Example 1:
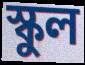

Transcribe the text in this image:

স্কুল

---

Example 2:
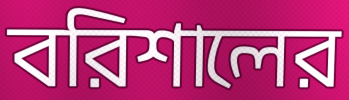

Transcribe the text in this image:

বরিশালের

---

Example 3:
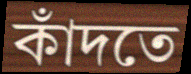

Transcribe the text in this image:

কাঁদতে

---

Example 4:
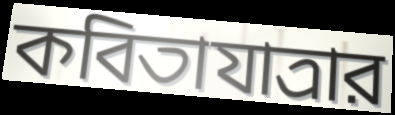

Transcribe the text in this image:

কবিতাযাত্রার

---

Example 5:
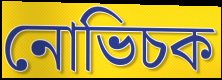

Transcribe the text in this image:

নোভিচক